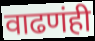
वाढणंही